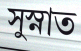
সুস্নাত